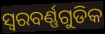
ସ୍ୱରବର୍ଣ୍ଣଗୁଡିକ